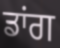
ਡਾਂਗ